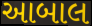
આબાલ